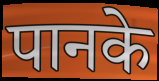
पानके